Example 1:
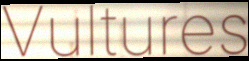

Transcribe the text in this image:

Vultures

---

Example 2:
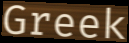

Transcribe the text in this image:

Greek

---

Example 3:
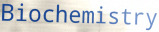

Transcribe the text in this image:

Biochemistry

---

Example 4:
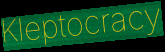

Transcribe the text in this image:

Kleptocracy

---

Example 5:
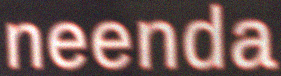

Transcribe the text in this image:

neenda